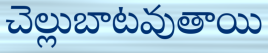
చెల్లుబాటవుతాయి